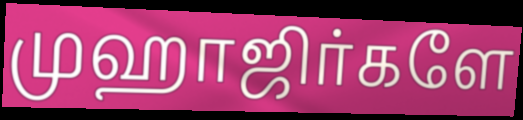
முஹாஜிர்களே